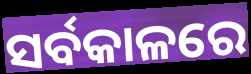
ସର୍ବକାଳରେ